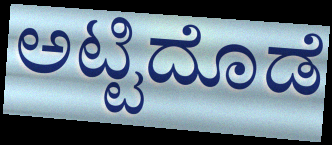
ಅಟ್ಟಿದೊಡೆ